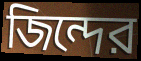
জিন্দের